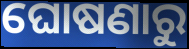
ଘୋଷଣାରୁ